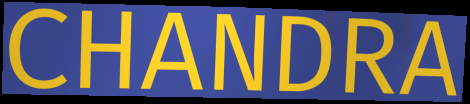
CHANDRA